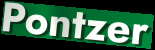
Pontzer